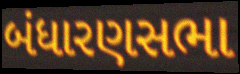
બંધારણસભા